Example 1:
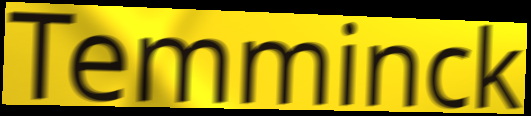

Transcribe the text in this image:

Temminck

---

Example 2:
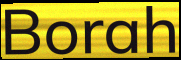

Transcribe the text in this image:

Borah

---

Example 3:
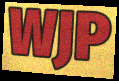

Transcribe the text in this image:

WJP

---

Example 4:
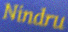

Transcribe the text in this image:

Nindru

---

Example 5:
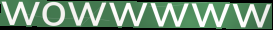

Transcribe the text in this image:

wowwwww